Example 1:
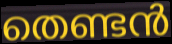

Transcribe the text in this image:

തെണ്ടൻ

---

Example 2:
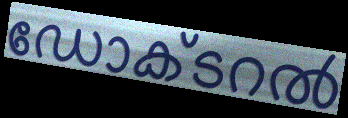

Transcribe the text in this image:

ഡോക്ടറൽ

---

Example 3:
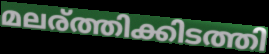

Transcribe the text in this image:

മലര്ത്തിക്കിടത്തി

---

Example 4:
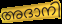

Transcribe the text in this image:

അദാനി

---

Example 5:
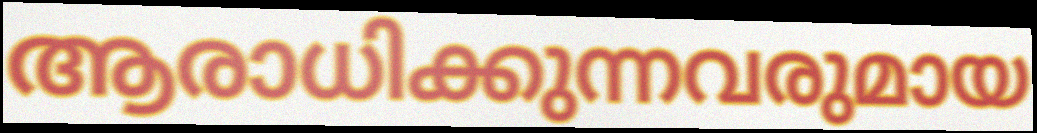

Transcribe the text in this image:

ആരാധിക്കുന്നവരുമായ